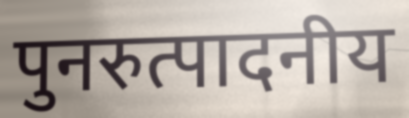
पुनरुत्पादनीय